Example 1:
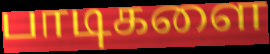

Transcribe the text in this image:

பாடிகளை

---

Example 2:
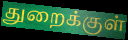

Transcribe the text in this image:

துறைக்குள்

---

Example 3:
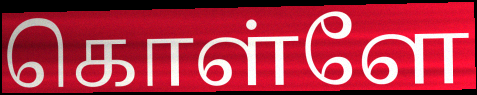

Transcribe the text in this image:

கொள்ளே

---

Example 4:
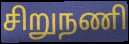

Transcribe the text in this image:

சிறுநணி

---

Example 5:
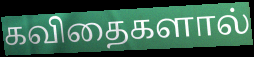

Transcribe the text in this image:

கவிதைகளால்